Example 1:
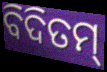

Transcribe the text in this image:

ବିଦିତମ୍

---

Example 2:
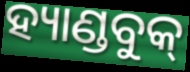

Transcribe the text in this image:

ହ୍ୟାଣ୍ଡବୁକ୍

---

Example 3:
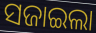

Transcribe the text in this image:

ସଜାଇଲା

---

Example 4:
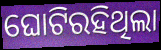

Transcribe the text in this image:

ଘୋଟିରହିଥିଲା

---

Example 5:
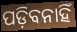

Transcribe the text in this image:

ପଡ଼ିବନାହିଁ